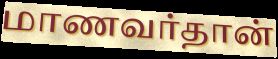
மாணவர்தான்